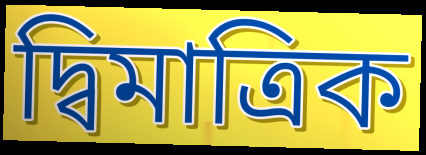
দ্বিমাত্রিক